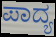
ಪಾದ್ಯ